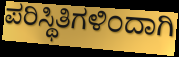
ಪರಿಸ್ಥಿತಿಗಳಿಂದಾಗಿ